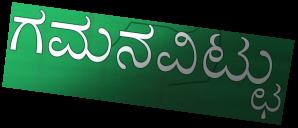
ಗಮನವಿಟ್ಟು